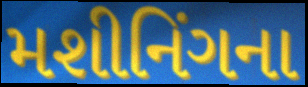
મશીનિંગના